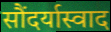
सौंदर्यास्वाद